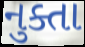
નુક્તા